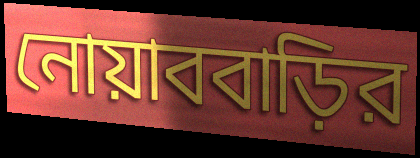
নোয়াববাড়ির